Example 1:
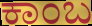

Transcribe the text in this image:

ಕಾಂಬ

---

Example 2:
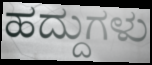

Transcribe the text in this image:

ಹದ್ದುಗಳು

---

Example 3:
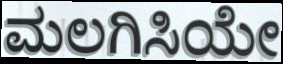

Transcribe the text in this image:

ಮಲಗಿಸಿಯೇ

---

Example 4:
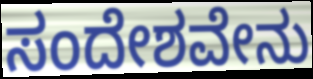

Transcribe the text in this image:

ಸಂದೇಶವೇನು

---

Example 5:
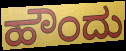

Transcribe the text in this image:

ಹೌಂದು